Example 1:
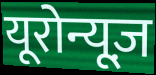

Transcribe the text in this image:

यूरोन्यूज़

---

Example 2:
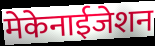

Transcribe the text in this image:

मेकेनाईजेशन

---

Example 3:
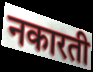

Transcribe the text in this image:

नकारती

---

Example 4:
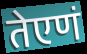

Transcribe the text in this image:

तेएणं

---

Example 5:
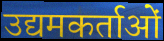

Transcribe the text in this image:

उद्यमकर्ताओं